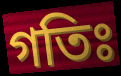
গতিঃ